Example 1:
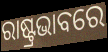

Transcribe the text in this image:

ରାଷ୍ଟ୍ରଭାବରେ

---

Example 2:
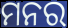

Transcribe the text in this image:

ମନର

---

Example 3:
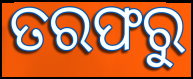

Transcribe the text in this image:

ତରଫରୁ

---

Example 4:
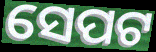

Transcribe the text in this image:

ସେପଟ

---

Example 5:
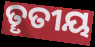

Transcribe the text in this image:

ତୄତୀୟ